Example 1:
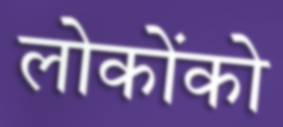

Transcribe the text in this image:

लोकोंको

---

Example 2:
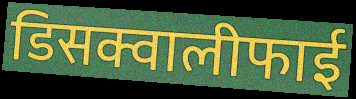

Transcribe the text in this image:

डिसक्वालीफाई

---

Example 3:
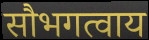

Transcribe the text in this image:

सौभगत्वाय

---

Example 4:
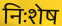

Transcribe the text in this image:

निःशेष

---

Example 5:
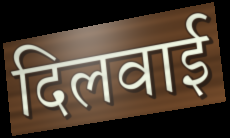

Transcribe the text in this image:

दिलवाई